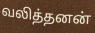
வலித்தனன்